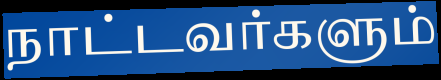
நாட்டவர்களும்